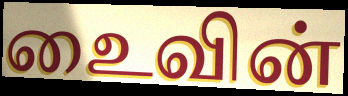
உைவின்